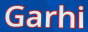
Garhi